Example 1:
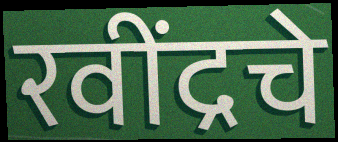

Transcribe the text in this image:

रवींद्रचे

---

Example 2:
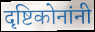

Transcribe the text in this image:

दृष्टिकोनांनी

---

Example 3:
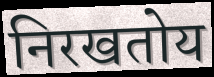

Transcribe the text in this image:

निरखतोय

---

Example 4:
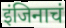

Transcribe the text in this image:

इंजिनाचं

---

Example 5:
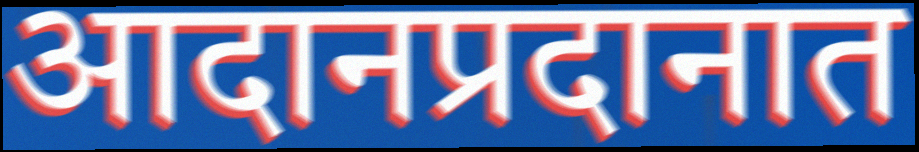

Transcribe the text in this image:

आदानप्रदानात